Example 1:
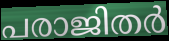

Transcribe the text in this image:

പരാജിതർ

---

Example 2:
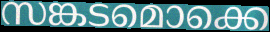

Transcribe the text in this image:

സങ്കടമൊക്കെ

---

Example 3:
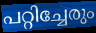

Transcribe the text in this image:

പറ്റിച്ചേരും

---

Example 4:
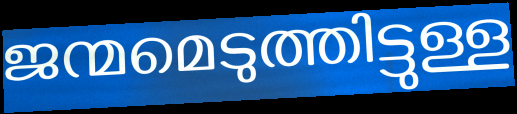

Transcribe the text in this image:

ജന്മമെടുത്തിട്ടുള്ള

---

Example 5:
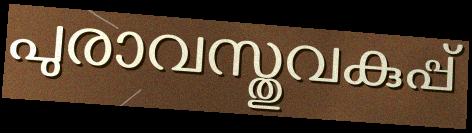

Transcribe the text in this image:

പുരാവസ്തുവകുപ്പ്